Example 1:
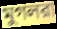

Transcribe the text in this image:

মুগলরা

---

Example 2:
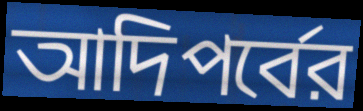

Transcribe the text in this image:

আদিপর্বের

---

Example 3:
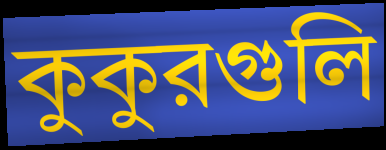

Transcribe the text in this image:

কুকুরগুলি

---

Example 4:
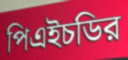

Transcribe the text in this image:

পিএইচডির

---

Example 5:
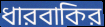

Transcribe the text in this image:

ধারবাকির